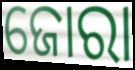
ଜୋରା